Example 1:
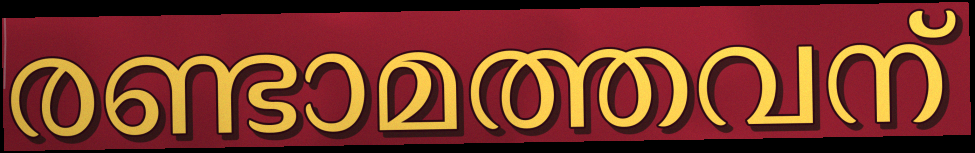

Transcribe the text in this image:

രണ്ടാമത്തവന്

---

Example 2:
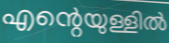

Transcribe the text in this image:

എന്റെയുള്ളിൽ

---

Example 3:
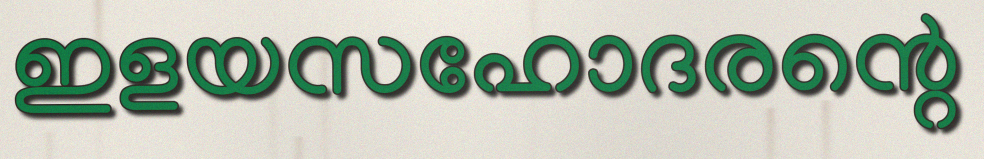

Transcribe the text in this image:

ഇളയസഹോദരന്റെ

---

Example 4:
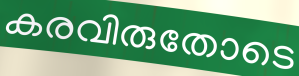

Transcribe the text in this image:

കരവിരുതോടെ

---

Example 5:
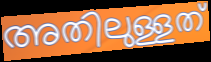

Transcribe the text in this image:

അതിലുള്ളത്